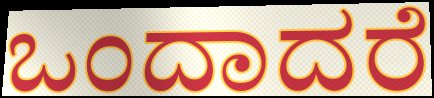
ಒಂದಾದರೆ